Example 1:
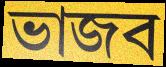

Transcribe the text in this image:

ভাজব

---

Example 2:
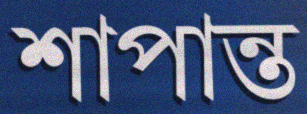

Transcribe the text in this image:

শাপান্ত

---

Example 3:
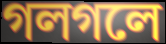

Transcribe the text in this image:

গলগলে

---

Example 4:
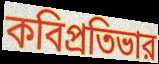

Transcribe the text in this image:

কবিপ্রতিভার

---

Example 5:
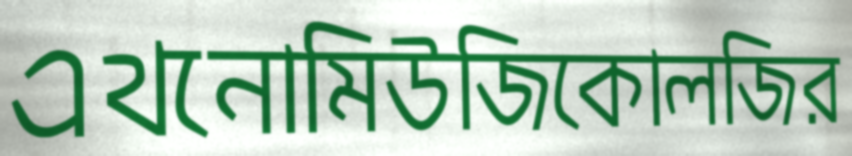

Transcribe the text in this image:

এথনোমিউজিকোলজির